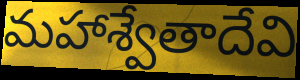
మహాశ్వేతాదేవి